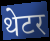
थेटर